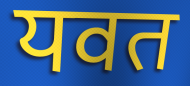
यवत